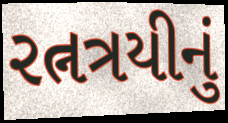
રત્નત્રયીનું